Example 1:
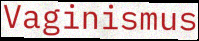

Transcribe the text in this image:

Vaginismus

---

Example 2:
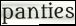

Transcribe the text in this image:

panties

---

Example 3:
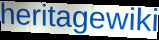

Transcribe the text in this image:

heritagewiki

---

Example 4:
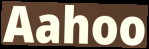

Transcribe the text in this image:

Aahoo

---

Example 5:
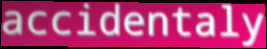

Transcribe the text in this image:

accidentaly